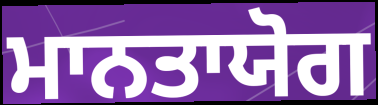
ਮਾਨਤਾਯੋਗ